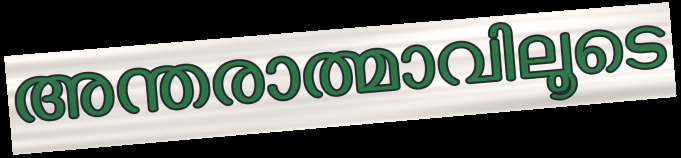
അന്തരാത്മാവിലൂടെ